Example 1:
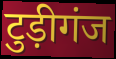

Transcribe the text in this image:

टुड़ीगंज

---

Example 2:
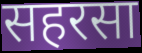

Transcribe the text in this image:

सहरसा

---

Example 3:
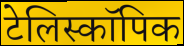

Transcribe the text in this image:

टेलिस्कॉपिक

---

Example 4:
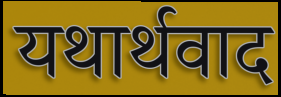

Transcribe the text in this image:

यथार्थवाद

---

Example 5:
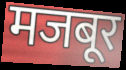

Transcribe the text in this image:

मजबूर